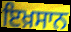
ਇਖ਼ਸਾਨ